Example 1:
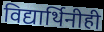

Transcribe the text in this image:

विद्यार्थिनीही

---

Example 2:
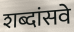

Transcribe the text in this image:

शब्दांसवे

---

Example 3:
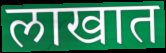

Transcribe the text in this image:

लाखात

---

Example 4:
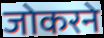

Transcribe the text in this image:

जोकरने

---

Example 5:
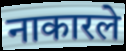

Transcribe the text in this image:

नाकारले